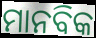
ମାନବିକ